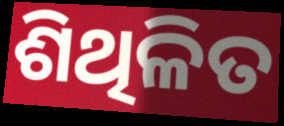
ଶିଥିଳିତ